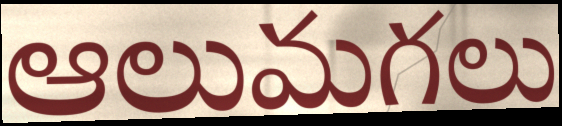
ఆలుమగలు